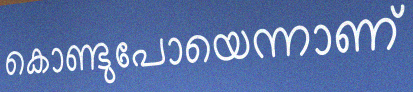
കൊണ്ടുപോയെന്നാണ്